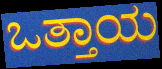
ಒತ್ತಾಯ